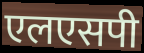
एलएसपी